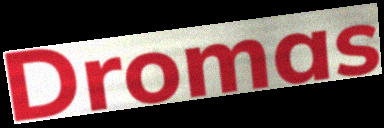
Dromas